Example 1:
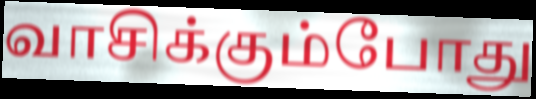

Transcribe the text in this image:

வாசிக்கும்போது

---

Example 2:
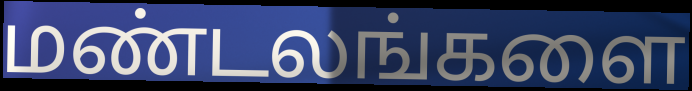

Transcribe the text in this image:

மண்டலங்களை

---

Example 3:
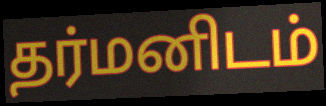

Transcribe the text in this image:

தர்மனிடம்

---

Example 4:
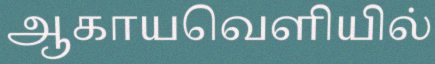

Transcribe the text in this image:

ஆகாயவெளியில்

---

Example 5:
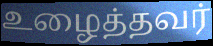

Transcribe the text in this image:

உழைத்தவர்